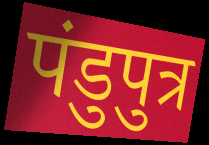
पंडुपुत्र